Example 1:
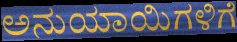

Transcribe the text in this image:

ಅನುಯಾಯಿಗಳಿಗೆ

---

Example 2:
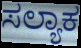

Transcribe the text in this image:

ಸಲ್ಯಾಕ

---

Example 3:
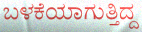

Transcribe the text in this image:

ಬಳಕೆಯಾಗುತ್ತಿದ್ದ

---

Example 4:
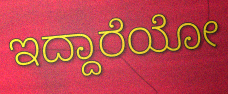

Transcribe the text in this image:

ಇದ್ದಾರೆಯೋ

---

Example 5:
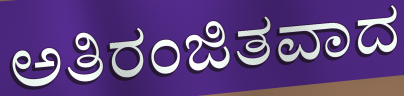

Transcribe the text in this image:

ಅತಿರಂಜಿತವಾದ